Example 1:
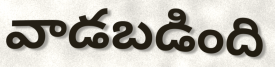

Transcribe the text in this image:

వాడబడింది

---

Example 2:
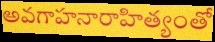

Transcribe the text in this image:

అవగాహనారాహిత్యంతో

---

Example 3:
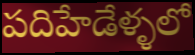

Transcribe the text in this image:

పదిహేడేళ్ళలో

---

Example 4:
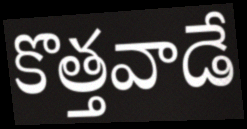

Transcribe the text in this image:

కొత్తవాడే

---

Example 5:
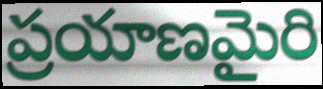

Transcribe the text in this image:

ప్రయాణమైరి